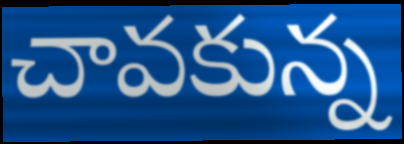
చావకున్న